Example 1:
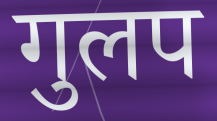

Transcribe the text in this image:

गुलप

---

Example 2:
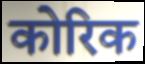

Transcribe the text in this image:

कोरिक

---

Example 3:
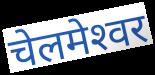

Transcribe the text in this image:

चेलमेश्‍वर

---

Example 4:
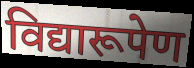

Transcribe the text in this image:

विद्यारूपेण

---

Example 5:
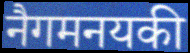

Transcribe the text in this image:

नैगमनयकी